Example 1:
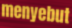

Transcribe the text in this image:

menyebut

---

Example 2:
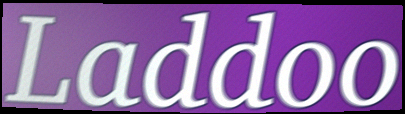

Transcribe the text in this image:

Laddoo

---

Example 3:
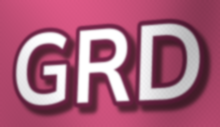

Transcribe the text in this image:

GRD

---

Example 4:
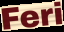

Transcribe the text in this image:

Feri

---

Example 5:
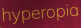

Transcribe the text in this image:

hyperopia